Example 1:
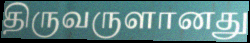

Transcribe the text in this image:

திருவருளானது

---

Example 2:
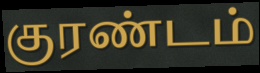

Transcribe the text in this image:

குரண்டம்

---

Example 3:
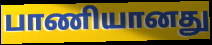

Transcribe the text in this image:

பாணியானது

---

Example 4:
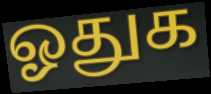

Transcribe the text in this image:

ஓதுக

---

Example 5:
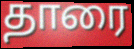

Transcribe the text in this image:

தாரை